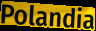
Polandia